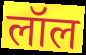
लॉल